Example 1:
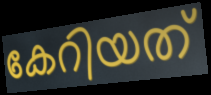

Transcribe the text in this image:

കേറിയത്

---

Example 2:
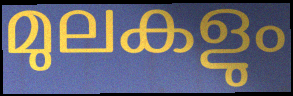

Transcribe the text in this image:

മുലകളും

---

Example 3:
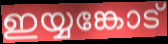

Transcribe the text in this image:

ഇയ്യങ്കോട്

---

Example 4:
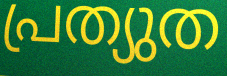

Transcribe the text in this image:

പ്രത്യുത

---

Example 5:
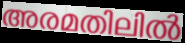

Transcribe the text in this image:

അരമതിലിൽ